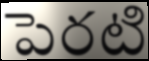
పెరటి